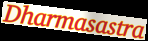
Dharmasastra